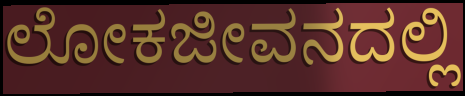
ಲೋಕಜೀವನದಲ್ಲಿ